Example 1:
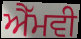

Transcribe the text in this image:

ਐੱਮਵੀ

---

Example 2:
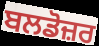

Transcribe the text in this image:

ਬਲਡੋਜ਼ਰ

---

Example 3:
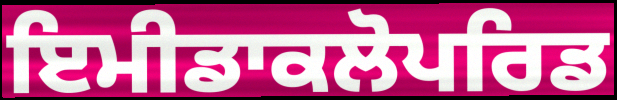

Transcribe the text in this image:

ਇਮੀਡਾਕਲੋਪਰਿਡ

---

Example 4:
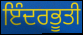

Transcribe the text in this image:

ਇੰਦਰਭੂਤੀ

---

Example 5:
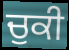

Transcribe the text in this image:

ਚੁਕੀ